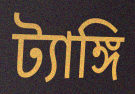
ট্যাঙ্গি